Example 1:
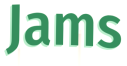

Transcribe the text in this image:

Jams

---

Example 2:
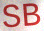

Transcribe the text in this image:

SB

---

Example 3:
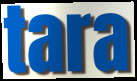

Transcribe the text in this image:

tara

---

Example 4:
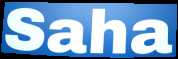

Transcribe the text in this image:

Saha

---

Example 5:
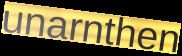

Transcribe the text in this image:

unarnthen